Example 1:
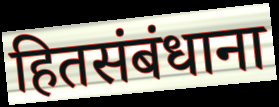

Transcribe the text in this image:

हितसंबंधाना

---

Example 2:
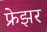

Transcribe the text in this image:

फ्रेझर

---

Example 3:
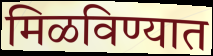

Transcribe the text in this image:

मिळविण्यात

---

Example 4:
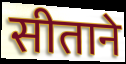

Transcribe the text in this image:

सीताने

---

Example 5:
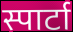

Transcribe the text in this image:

स्पार्टा